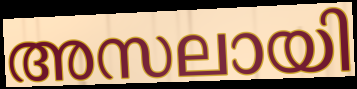
അസലായി